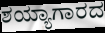
ಶಯ್ಯಾಗಾರದ